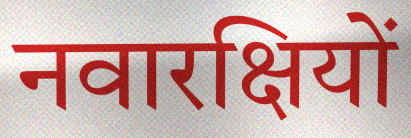
नवारक्षियों